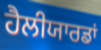
ਹੈਲੀਯਾਰਡਾਂ